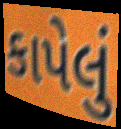
કાપેલું